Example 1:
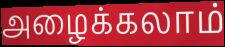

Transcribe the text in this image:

அழைக்கலாம்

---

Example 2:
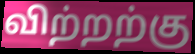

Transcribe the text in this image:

விற்றற்கு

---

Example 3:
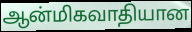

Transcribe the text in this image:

ஆன்மிகவாதியான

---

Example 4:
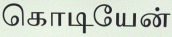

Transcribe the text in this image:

கொடியேன்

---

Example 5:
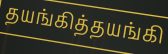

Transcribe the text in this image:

தயங்கித்தயங்கி